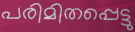
പരിമിതപ്പെട്ടു